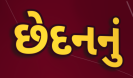
છેદનનું